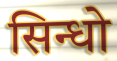
सिन्धो